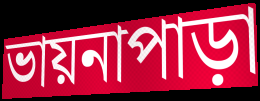
ভায়নাপাড়া